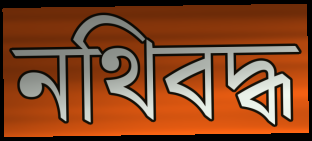
নথিবদ্ধ